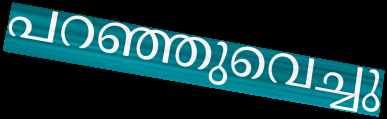
പറഞ്ഞുവെച്ചു